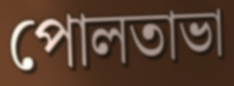
পোলতাভা